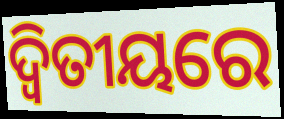
ଦ୍ଵିତୀୟରେ